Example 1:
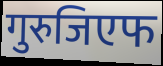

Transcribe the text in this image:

गुरुजिएफ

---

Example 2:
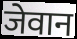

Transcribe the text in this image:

जेवान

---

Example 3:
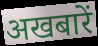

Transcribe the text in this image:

अखबारें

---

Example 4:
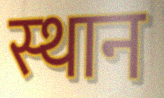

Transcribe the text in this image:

स्‍थान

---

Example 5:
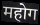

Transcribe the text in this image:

महोग